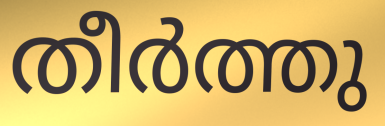
തീർത്തു